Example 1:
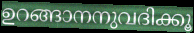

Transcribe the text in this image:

ഉറങ്ങാനനുവദിക്കൂ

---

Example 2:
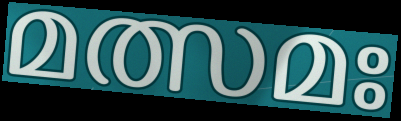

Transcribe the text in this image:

മത്സമഃ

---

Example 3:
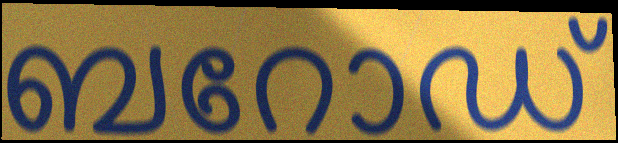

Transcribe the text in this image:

ബറോഡ്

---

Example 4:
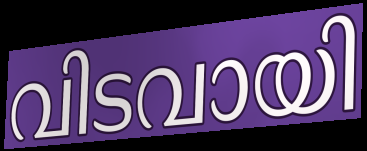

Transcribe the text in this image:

വിടവായി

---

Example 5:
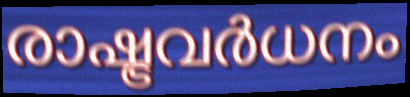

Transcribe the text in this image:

രാഷ്ട്രവർധനം